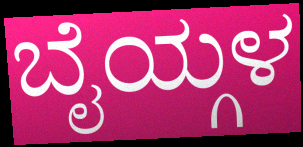
ಬೈಯ್ಗಳ